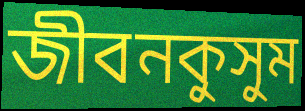
জীবনকুসুম